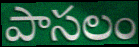
పాసలం